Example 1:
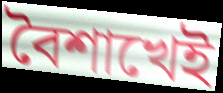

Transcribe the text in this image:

বৈশাখেই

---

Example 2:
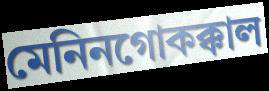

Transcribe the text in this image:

মেনিনগোকক্কাল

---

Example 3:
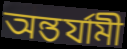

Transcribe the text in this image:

অন্তর্যামী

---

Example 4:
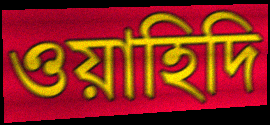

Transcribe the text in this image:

ওয়াহিদি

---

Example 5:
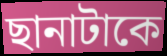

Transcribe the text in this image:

ছানাটাকে